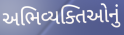
અભિવ્યક્તિઓનું